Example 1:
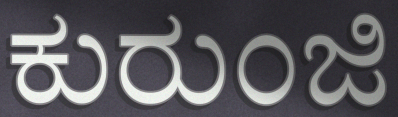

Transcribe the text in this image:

ಕುರುಂಜಿ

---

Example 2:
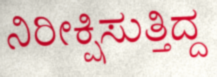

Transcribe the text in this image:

ನಿರೀಕ್ಷಿಸುತ್ತಿದ್ದ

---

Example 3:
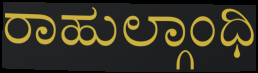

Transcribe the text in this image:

ರಾಹುಲ್ಗಾಂಧಿ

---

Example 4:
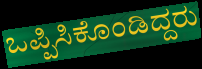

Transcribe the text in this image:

ಒಪ್ಪಿಸಿಕೊಂಡಿದ್ದರು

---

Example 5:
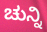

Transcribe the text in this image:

ಚುನ್ನಿ